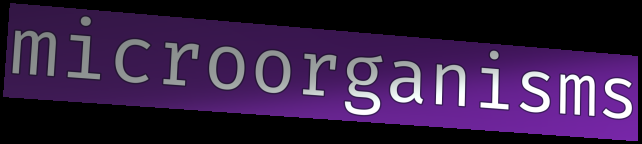
microorganisms